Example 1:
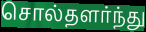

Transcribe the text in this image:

சொல்தளர்ந்து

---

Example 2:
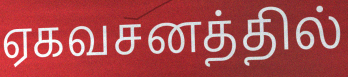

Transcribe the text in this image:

ஏகவசனத்தில்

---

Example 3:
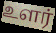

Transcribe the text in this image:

உளர்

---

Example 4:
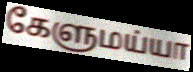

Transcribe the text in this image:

கேளுமய்யா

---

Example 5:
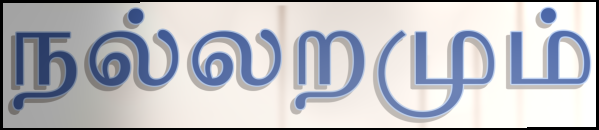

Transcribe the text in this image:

நல்லறமும்